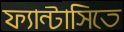
ফ্যান্টাসিতে